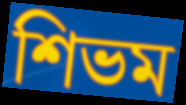
শিভম